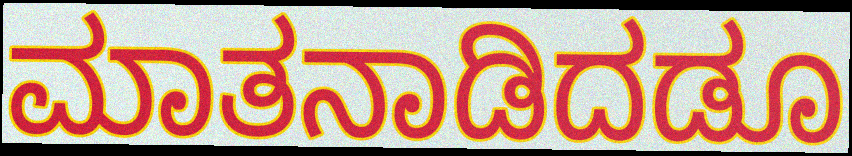
ಮಾತನಾಡಿದಡೂ